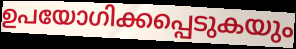
ഉപയോഗിക്കപ്പെടുകയും